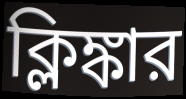
ক্লিঙ্কার